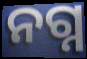
ନଗ୍ନ